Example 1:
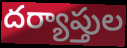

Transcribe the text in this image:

దర్యాప్తుల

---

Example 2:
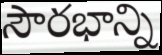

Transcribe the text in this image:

సౌరభాన్ని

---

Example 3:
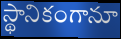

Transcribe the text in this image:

స్థానికంగానూ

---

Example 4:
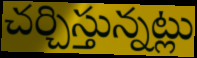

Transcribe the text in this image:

చర్చిస్తున్నట్లు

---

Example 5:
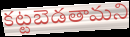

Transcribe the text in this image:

కట్టబెడతామని